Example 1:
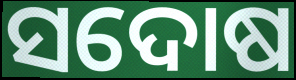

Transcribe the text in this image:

ସଦୋଷ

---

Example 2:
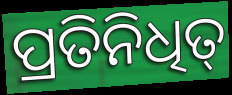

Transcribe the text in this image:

ପ୍ରତିନିଧିତ୍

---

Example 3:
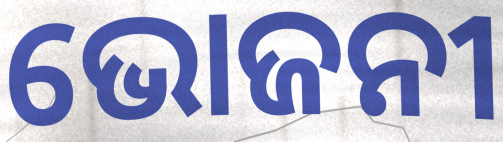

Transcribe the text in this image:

ଭୋଜନୀ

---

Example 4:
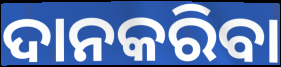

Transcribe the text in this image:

ଦାନକରିବା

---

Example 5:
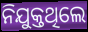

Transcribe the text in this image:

ନିଯୁକ୍ତଥିଲେ